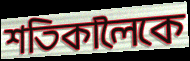
শতিকালৈকে